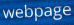
webpage